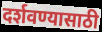
दर्शवण्यासाठी